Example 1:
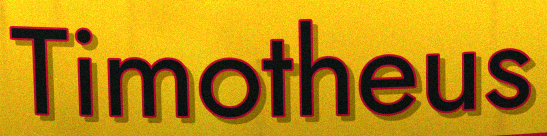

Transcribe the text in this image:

Timotheus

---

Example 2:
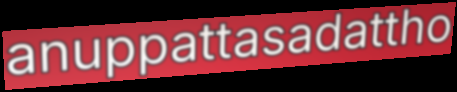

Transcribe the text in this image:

anuppattasadattho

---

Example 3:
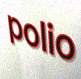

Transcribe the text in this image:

polio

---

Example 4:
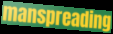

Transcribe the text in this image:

manspreading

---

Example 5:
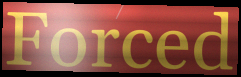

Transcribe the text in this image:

Forced